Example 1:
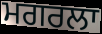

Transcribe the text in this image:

ਮਗਰਲਾ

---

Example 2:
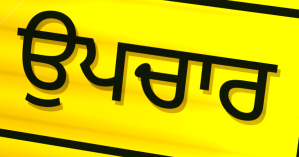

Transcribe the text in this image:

ਉਪਚਾਰ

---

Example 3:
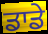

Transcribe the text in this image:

ਡਾਡੇ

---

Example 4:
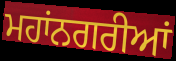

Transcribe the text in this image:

ਮਹਾਂਨਗਰੀਆਂ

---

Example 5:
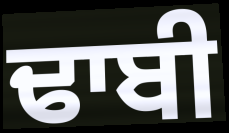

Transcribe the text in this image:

ਢਾਬੀ